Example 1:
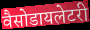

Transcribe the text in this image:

वैसोडायलेटरी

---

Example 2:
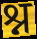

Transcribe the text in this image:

श्न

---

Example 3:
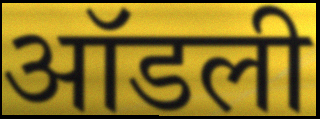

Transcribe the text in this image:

ऑडली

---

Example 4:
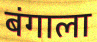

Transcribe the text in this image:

बंगाला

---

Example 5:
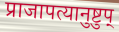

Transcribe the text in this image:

प्राजापत्यानुष्टुप्